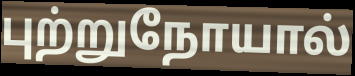
புற்றுநோயால்